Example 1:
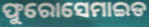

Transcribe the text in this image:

ଫୁରୋସେମାଇଡ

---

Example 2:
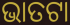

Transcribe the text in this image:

ଭାତଟା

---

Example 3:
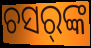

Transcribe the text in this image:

ଚସର୍‌ଙ୍କ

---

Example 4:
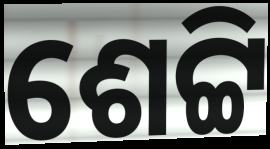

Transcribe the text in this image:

ଶେଟ୍ଟି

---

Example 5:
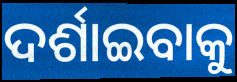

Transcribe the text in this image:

ଦର୍ଶାଇବାକୁ